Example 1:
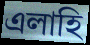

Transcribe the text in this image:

এলাহি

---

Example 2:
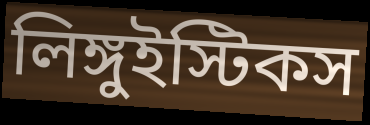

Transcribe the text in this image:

লিঙ্গুইস্টিকস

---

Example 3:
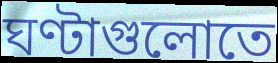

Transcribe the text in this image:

ঘণ্টাগুলোতে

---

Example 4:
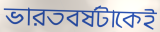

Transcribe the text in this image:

ভারতবর্ষটাকেই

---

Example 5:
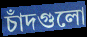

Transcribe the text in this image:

চাঁদগুলো